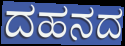
ದಹನದ